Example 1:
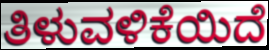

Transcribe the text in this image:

ತಿಳುವಳಿಕೆಯಿದೆ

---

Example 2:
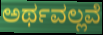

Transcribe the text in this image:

ಅರ್ಥವಲ್ಲವೆ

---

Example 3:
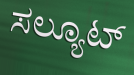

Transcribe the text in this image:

ಸಲ್ಯೂಟ್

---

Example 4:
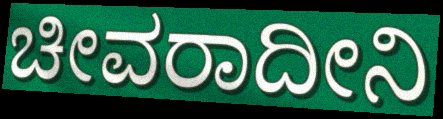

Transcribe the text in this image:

ಚೀವರಾದೀನಿ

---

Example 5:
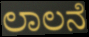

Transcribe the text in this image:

ಲಾಲನೆ